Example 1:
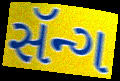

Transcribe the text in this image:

સૅન્ગ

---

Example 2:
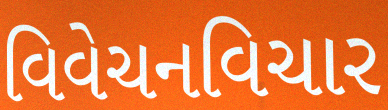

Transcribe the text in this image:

વિવેચનવિચાર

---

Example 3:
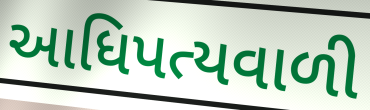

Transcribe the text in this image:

આધિપત્યવાળી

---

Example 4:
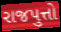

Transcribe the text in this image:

રાજપુત્તો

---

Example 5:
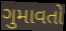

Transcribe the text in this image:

ગુમાવતો